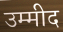
उम्मीद